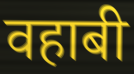
वहाबी